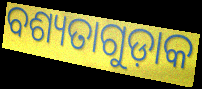
ବଶ୍ୟତାଗୁଡ଼ାକ